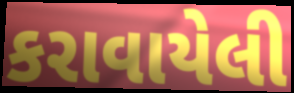
કરાવાયેલી